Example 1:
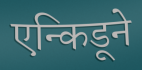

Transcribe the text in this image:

एन्किडूने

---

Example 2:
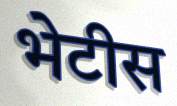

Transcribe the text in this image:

भेटीस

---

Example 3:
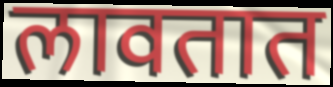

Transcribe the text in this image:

लावतात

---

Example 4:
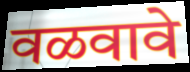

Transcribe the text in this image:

वळवावे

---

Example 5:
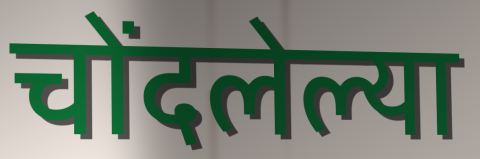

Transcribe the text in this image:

चोंदलेल्या